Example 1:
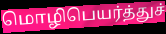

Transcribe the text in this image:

மொழிபெயர்த்துச்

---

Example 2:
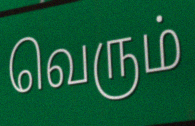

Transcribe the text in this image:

வெரும்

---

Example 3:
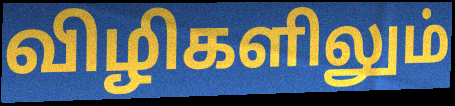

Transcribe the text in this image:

விழிகளிலும்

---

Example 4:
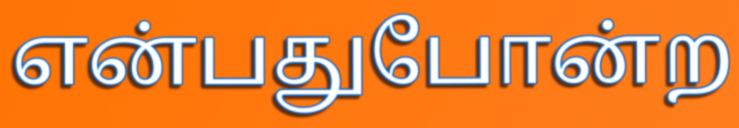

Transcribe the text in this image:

என்பதுபோன்ற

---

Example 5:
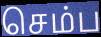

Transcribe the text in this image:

செம்ப